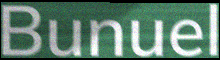
Bunuel